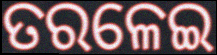
ତରଳେଇ